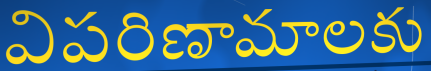
విపరిణామాలకు